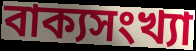
বাক্যসংখ্যা